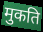
मुकति